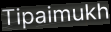
Tipaimukh